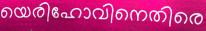
യെരിഹോവിനെതിരെ